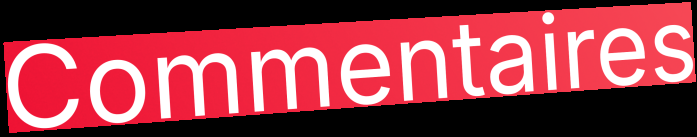
Commentaires